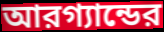
আরগ্যান্ডের